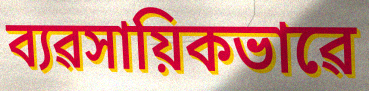
ব্যৱসায়িকভাৱে